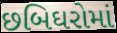
છબિઘરોમાં